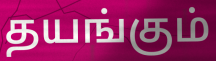
தயங்கும்